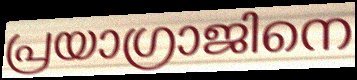
പ്രയാഗ്രാജിനെ